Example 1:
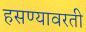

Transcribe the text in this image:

हसण्यावरती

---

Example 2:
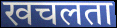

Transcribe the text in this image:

खचलता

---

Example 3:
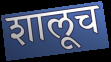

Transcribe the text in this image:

शालूच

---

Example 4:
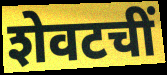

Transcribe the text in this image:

शेवटचीं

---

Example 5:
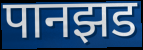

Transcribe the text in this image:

पानझड